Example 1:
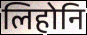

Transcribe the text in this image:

लिहोनि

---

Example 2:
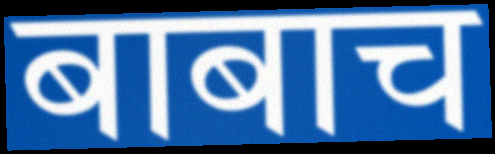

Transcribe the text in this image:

बाबाच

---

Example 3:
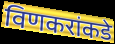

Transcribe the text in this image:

विणकरांकडे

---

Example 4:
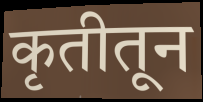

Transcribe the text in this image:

कृतीतून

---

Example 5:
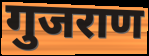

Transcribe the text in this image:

गुजराण